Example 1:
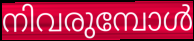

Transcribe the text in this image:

നിവരുമ്പോൾ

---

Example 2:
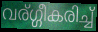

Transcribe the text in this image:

വര്ഗ്ഗീകരിച്ച്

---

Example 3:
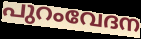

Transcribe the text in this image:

പുറംവേദന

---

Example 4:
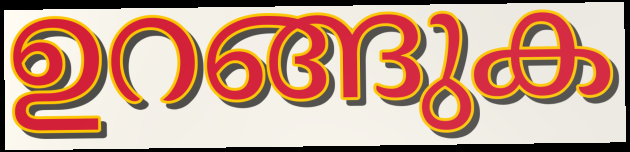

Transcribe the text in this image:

ഉറങ്ങുക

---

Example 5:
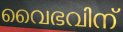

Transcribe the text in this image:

വൈഭവിന്